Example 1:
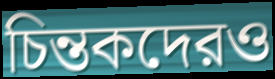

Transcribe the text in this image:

চিন্তকদেরও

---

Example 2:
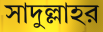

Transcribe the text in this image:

সাদুল্লাহর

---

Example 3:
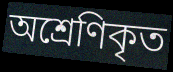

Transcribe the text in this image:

অশ্রেণিকৃত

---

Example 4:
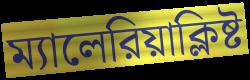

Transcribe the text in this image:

ম্যালেরিয়াক্লিষ্ট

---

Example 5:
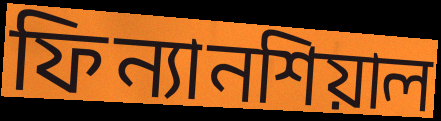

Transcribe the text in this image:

ফিন্যানশিয়াল